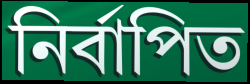
নির্বাপিত